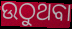
ଉଠୁଥବା